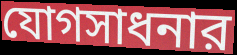
যোগসাধনার